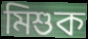
মিশুক